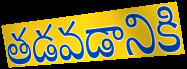
తడవడానికి